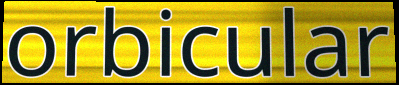
orbicular